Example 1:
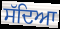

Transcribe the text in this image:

ਸੱਦਿਆ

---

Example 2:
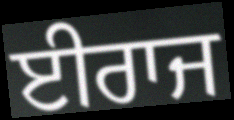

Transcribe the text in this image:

ਈਰਾਜ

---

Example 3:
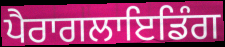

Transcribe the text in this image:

ਪੈਰਾਗਲਾਇਡਿੰਗ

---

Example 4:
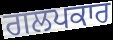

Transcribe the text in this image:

ਗਲਪਕਾਰ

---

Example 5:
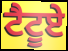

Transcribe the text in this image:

ਟੈਟੂਏ